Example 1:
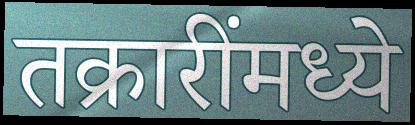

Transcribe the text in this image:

तक्रारींमध्ये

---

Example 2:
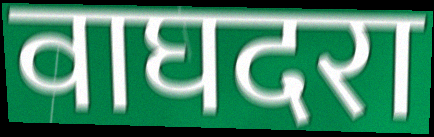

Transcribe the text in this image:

वाघदरा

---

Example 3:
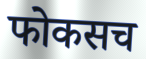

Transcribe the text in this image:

फोकसच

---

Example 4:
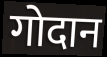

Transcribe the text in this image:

गोदान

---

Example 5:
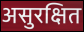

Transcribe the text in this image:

असुरक्षित